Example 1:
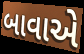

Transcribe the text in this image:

બાવાએ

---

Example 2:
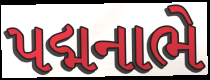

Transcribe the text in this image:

પદ્મનાભે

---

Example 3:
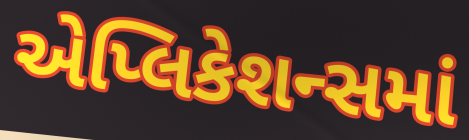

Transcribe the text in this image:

એપ્લિકેશન્સમાં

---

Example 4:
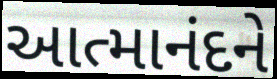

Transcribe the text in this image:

આત્માનંદને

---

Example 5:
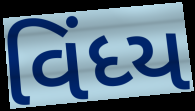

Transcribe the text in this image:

વિંધ્ય